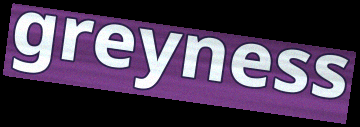
greyness